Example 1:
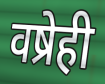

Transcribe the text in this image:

वष्रेही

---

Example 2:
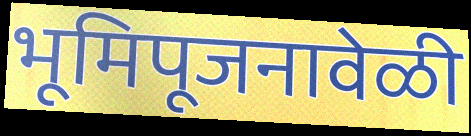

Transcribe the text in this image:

भूमिपूजनावेळी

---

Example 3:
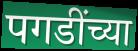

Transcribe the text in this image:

पगडींच्या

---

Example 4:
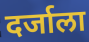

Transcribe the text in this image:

दर्जाला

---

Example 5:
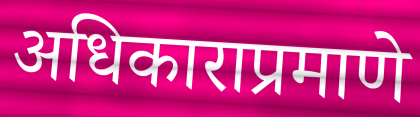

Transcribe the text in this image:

अधिकाराप्रमाणे